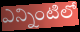
ఎన్నింటిలో